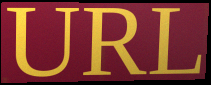
URL